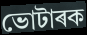
ভোটাৰক